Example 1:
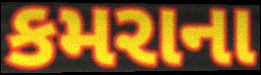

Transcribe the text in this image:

કમરાના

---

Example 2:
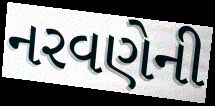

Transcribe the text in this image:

નરવણેની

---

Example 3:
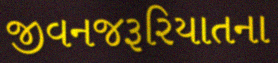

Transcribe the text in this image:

જીવનજરૂરિયાતના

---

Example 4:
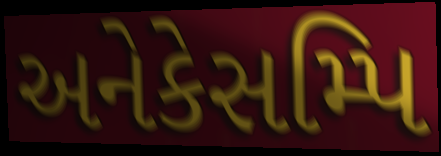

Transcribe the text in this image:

અનેકેસમ્પિ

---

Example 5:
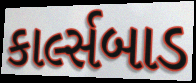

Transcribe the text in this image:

કાર્લ્સબાડ